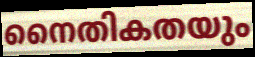
നൈതികതയും